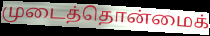
முடைத்தொன்மைக்